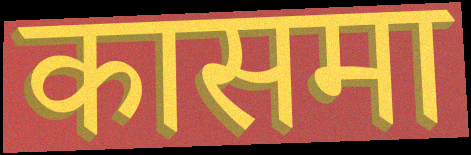
कासमा